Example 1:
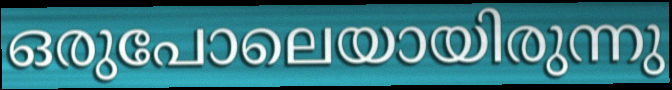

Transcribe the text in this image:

ഒരുപോലെയായിരുന്നു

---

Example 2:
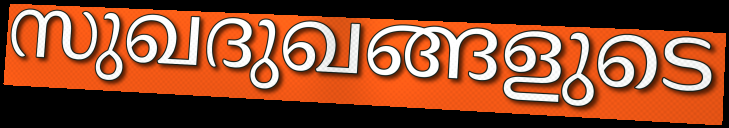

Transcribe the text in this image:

സുഖദുഖങ്ങളുടെ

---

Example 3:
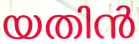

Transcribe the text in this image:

യതിൻ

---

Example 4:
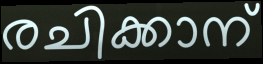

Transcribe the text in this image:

രചിക്കാന്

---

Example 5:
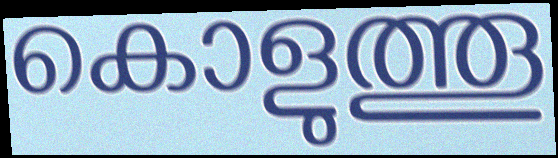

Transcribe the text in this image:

കൊളുത്തൂ